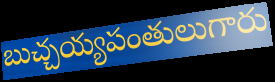
బుచ్చయ్యపంతులుగారు